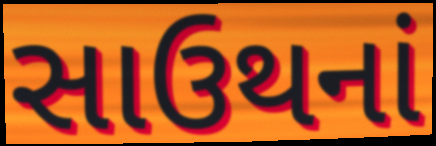
સાઉથનાં